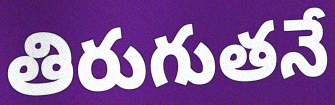
తిరుగుతనే